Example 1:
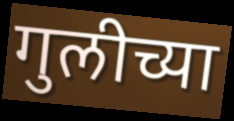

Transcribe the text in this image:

गुलीच्या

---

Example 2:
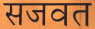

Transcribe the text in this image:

सजवत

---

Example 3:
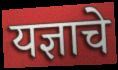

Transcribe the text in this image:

यज्ञाचे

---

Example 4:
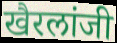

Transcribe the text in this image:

खैरलांजी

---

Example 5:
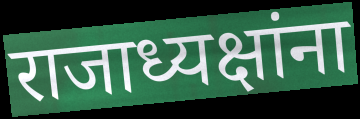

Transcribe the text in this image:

राजाध्यक्षांना